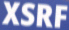
XSRF